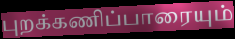
புறக்கணிப்பாரையும்